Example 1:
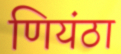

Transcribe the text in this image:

णियंठा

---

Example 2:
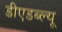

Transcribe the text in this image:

डीएडब्ल्यू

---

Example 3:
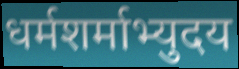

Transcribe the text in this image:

धर्मशर्माभ्युदय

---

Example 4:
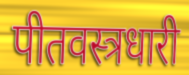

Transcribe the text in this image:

पीतवस्त्रधारी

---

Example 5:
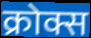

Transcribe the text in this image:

क्रोक्स